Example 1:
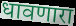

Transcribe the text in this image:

धावणारा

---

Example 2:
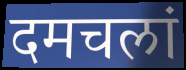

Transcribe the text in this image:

दमचलां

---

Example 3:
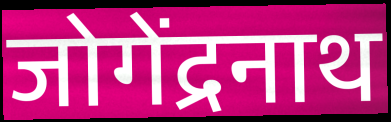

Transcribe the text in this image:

जोगेंद्रनाथ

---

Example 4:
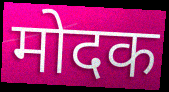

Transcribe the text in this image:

मोदक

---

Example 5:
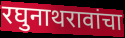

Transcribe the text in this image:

रघुनाथरावांचा